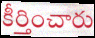
కీర్తించారు